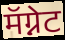
मॅग्नेट